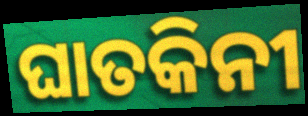
ଘାତକିନୀ